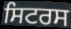
ਸਿਟਰਸ